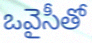
ఒవైసీతో